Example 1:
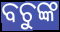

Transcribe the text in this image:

ବଚୁଙ୍କ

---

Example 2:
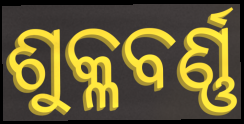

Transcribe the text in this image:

ଶୁକ୍ଳବର୍ଣ୍ଣ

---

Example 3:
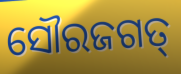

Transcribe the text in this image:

ସୌରଜଗତ୍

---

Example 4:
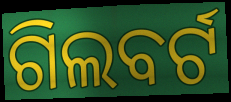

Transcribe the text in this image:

ଗିଲବର୍ଟ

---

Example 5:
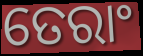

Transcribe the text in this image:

ତେରାଂ